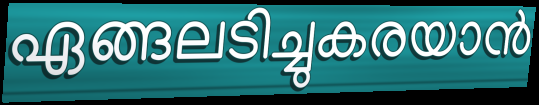
ഏങ്ങലടിച്ചുകരയാൻ